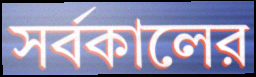
সর্বকালের